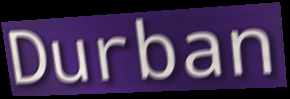
Durban